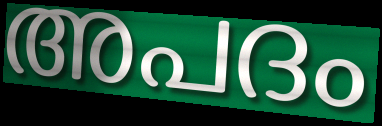
അപദം